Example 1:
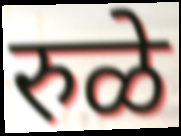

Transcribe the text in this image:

रुळे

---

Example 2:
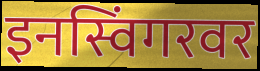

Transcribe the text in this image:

इनस्विंगरवर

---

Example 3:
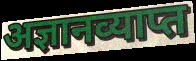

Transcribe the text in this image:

अज्ञानव्याप्त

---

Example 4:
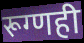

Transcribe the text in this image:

रूग्णही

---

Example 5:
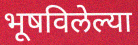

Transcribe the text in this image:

भूषविलेल्या